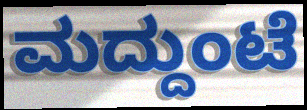
ಮದ್ದುಂಟೆ